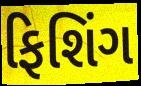
ફિશિંગ